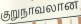
குறுநாவலான